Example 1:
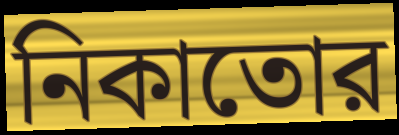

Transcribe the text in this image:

নিকাতোর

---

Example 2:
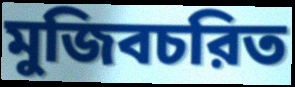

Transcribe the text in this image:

মুজিবচরিত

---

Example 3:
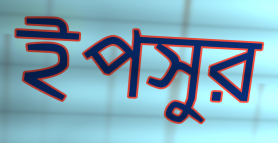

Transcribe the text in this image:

ইপসুর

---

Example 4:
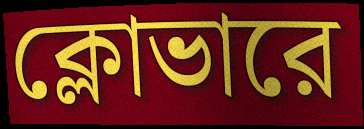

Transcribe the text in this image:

ক্লোভারে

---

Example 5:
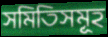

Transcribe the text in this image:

সমিতিসমূহ